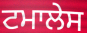
ਟਮਾਲੇਸ